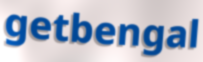
getbengal